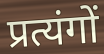
प्रत्यंगों